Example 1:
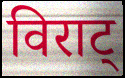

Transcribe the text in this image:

विराट्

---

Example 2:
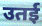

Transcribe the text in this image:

उतई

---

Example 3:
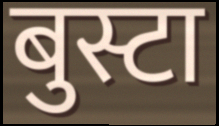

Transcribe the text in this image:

बुस्टा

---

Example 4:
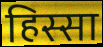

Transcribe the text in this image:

हिस्सा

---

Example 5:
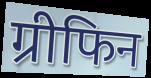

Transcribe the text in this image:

ग्रीफिन